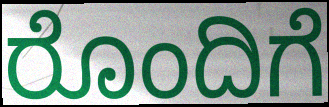
ರೊಂದಿಗೆ